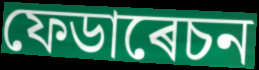
ফেডাৰেচন